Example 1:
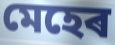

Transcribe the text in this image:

মেহেৰ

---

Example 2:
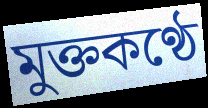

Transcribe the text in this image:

মুক্তকণ্ঠে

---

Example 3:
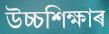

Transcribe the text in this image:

উচ্চশিক্ষাৰ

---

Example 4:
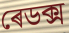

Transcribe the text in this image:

ৰেডক্স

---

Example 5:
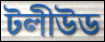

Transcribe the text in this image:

টলীউড